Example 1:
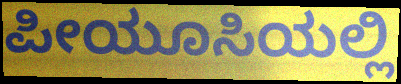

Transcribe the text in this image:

ಪೀಯೂಸಿಯಲ್ಲಿ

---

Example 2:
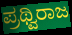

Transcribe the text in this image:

ಪ್ರಥ್ವಿರಾಜ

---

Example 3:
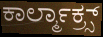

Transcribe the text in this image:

ಕಾರ್ಲ್ಮಾಕ್ರ್ಸ್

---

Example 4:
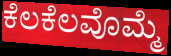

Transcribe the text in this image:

ಕೆಲಕೆಲವೊಮ್ಮೆ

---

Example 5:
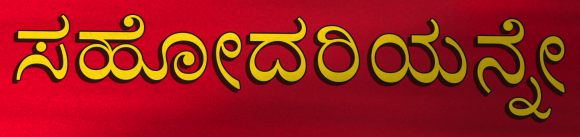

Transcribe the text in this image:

ಸಹೋದರಿಯನ್ನೇ